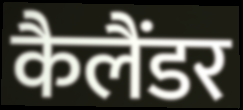
कैलैंडर